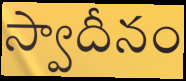
స్వాదీనం